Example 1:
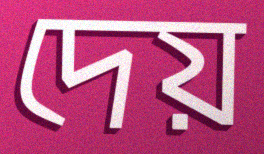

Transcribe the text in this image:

দেয়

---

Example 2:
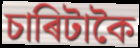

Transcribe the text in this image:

চাৰিটাকৈ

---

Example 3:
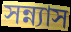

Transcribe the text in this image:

সন্ন্যাস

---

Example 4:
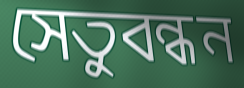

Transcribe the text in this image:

সেতুবন্ধন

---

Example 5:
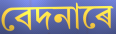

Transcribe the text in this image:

বেদনাৰে